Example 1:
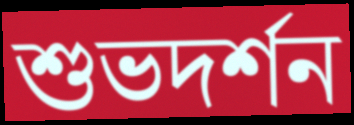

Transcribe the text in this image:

শুভদর্শন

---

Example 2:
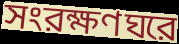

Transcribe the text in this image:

সংরক্ষণঘরে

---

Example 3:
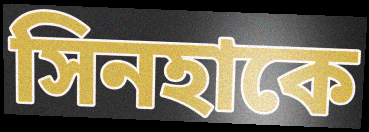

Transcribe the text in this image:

সিনহাকে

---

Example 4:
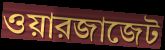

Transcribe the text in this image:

ওয়ারজাজেট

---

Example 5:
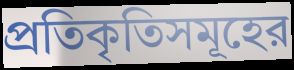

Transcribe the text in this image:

প্রতিকৃতিসমূহের